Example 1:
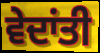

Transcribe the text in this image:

ਵੇਦਾਂਤੀ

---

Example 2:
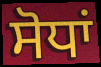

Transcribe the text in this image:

ਸੋਧਾਂ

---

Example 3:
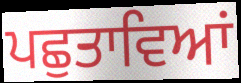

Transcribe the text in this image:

ਪਛੁਤਾਵਿਆਂ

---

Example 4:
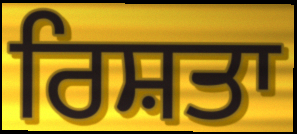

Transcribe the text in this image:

ਰਿਸ਼ਤਾ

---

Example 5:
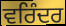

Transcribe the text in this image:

ਵਰਿੰਦਰ